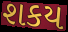
શકય